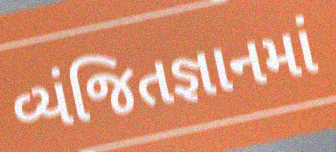
વ્યંજિતજ્ઞાનમાં